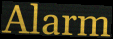
Alarm